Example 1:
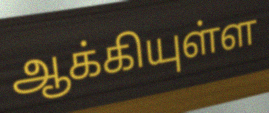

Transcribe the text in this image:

ஆக்கியுள்ள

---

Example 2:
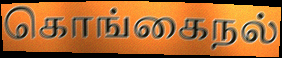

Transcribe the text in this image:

கொங்கைநல்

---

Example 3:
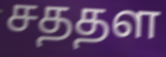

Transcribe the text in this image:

சததள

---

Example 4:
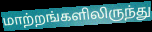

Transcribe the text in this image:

மாற்றங்களிலிருந்து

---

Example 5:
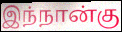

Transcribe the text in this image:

இந்நான்கு